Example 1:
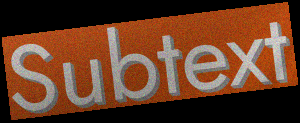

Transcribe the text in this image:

Subtext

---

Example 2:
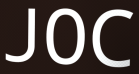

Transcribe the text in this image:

JOC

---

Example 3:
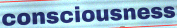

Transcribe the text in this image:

consciousness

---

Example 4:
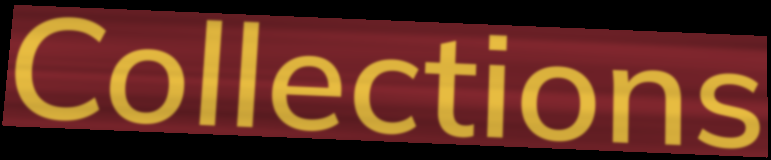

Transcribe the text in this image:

Collections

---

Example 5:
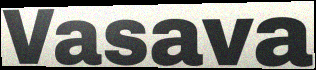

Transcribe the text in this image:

Vasava